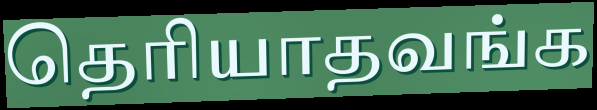
தெரியாதவங்க